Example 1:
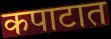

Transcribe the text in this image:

कपाटात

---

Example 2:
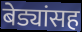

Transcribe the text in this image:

बेड्यांसह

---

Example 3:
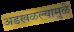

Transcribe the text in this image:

अडखळल्यामुळे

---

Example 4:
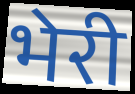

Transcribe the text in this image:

भेरी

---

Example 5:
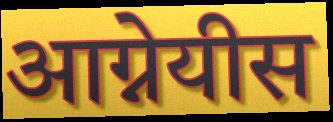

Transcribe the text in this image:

आग्नेयीस